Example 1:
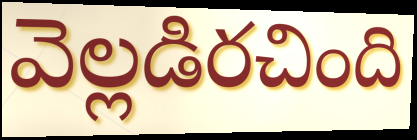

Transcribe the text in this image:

వెల్లడిరచింది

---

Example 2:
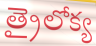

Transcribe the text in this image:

త్రైలోక్య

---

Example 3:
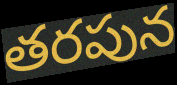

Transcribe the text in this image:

తరపున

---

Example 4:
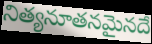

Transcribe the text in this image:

నిత్యనూతనమైనదే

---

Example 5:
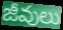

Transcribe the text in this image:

జీవులు